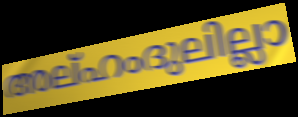
അല്ഹംദുലില്ലാ